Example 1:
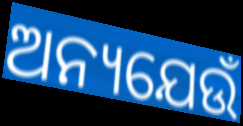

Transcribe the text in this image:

ଅନ୍ୟଯେଉଁ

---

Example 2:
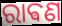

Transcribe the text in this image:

ରାଵଣ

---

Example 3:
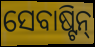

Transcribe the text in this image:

ସେବାଷ୍ଟିନ୍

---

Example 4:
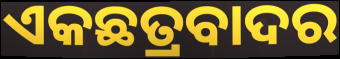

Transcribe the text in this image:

ଏକଛତ୍ରବାଦର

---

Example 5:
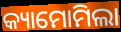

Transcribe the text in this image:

କ୍ୟାମୋମିଲା